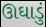
ઊઘાડું